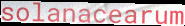
solanacearum